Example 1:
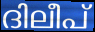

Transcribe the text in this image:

ദിലീപ്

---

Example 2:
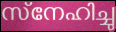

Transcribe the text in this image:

സ്‌നേഹിച്ചു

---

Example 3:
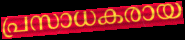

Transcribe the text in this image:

പ്രസാധകരായ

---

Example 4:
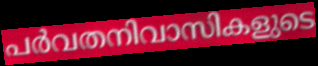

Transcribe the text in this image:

പർവതനിവാസികളുടെ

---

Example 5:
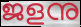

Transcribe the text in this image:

ജളനു